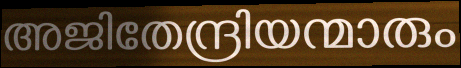
അജിതേന്ദ്രിയന്മാരും